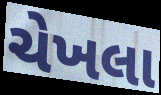
ચેખલા